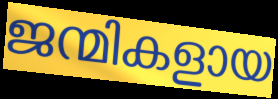
ജന്മികളായ